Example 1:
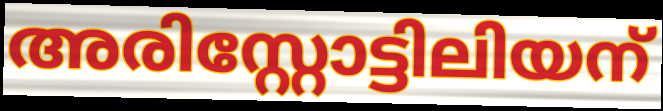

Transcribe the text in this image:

അരിസ്റ്റോട്ടിലിയന്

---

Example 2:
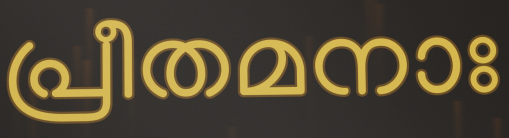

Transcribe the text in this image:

പ്രീതമനാഃ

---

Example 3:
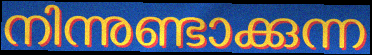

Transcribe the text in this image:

നിന്നുണ്ടാക്കുന്ന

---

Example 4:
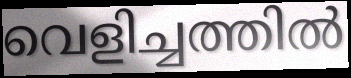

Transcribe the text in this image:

വെളിച്ചത്തിൽ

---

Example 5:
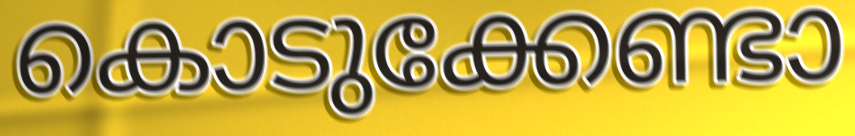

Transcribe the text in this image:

കൊടുക്കേണ്ടാ